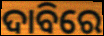
ଦାବିରେ